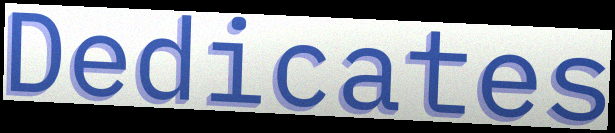
Dedicates